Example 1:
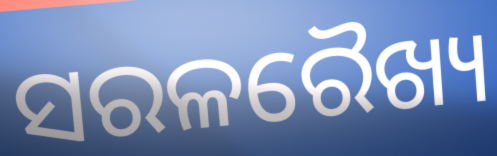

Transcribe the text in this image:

ସରଳରୈଖ୍ୟ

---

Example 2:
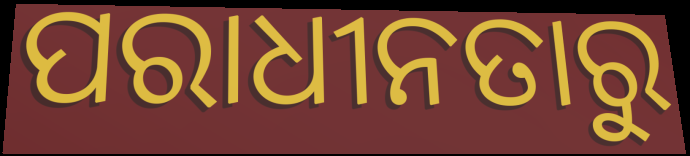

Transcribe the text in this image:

ପରାଧୀନତାରୁ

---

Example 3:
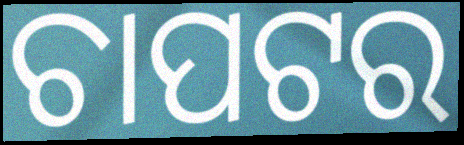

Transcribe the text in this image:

ଚାପଟର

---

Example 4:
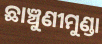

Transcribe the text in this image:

ଛାଞ୍ଚୁଣୀମୁଣ୍ଡା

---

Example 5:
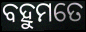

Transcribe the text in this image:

ବହୁମତେ